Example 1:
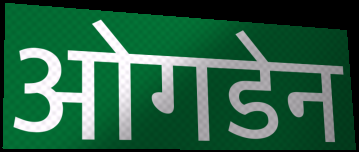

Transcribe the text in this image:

ओगडेन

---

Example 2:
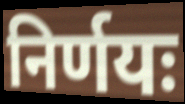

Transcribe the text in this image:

निर्णयः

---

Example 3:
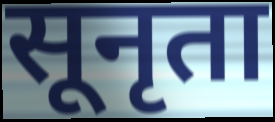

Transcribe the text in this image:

सूनृता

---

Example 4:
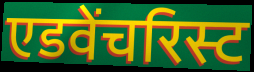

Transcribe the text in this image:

एडवेंचरिस्ट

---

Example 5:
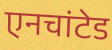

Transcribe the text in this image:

एनचांटेड